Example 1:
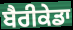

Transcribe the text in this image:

ਬੈਰੀਕੇਡਾ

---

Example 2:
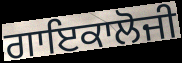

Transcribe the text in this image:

ਗਾਇਕਾਲੋਜੀ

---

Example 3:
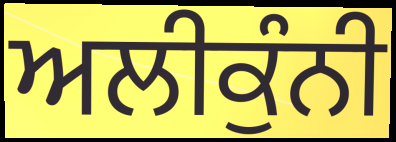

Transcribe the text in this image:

ਅਲੀਕੁੰਨੀ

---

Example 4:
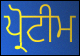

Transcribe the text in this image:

ਪ੍ਰੋਟੀਮ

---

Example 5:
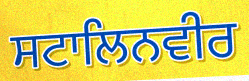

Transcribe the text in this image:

ਸਟਾਲਿਨਵੀਰ